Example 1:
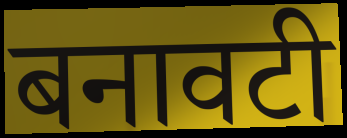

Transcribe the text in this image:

बनावटी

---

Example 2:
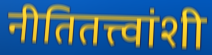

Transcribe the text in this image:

नीतितत्त्वांशी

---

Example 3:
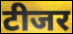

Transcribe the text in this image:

टीजर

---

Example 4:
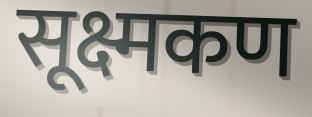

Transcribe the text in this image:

सूक्ष्मकण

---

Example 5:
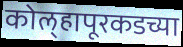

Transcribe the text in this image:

कोल्हापूरकडच्या